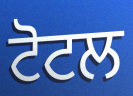
ਟੋਟਲ